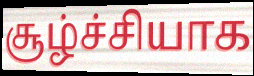
சூழ்ச்சியாக